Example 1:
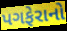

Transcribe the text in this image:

પગફેરાનો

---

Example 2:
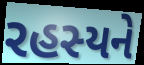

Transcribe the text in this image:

રહસ્યને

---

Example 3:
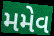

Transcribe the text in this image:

મમેવ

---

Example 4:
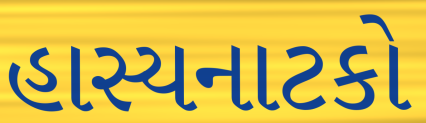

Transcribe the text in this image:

હાસ્યનાટકો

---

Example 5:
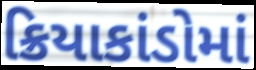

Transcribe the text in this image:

ક્રિયાકાંડોમાં